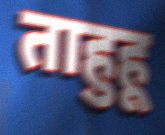
ताहुहू